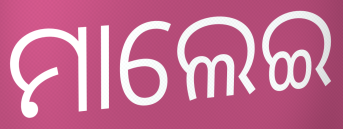
ମାଲେଇ